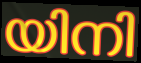
യിനി